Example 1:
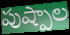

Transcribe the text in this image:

పుష్పాల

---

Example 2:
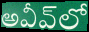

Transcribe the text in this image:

అవీవ్‌లో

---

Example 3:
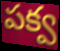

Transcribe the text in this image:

పక్వ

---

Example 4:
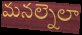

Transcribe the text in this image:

మనల్నెలా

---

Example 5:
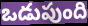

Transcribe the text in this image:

ఒడుపుంది